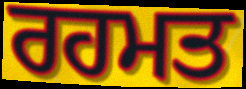
ਰਹਮਤ